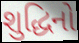
શુદ્ધિનો